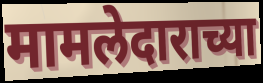
मामलेदाराच्या